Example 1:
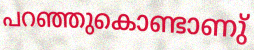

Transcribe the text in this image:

പറഞ്ഞുകൊണ്ടാണു്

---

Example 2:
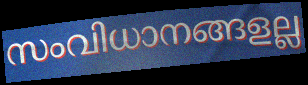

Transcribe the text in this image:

സംവിധാനങ്ങളല്ല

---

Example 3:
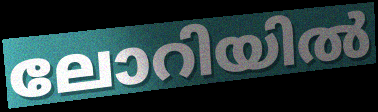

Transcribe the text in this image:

ലോറിയിൽ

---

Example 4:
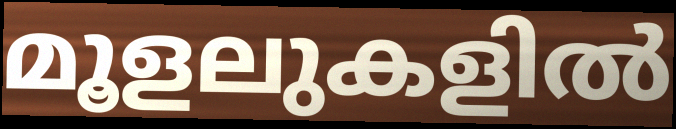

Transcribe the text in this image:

മൂളലുകളിൽ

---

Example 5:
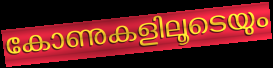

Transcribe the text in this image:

കോണുകളിലൂടെയും